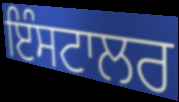
ਇੰਸਟਾਲਰ